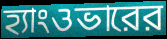
হ্যাংওভারের